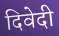
दिवेदी